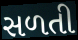
સળતી